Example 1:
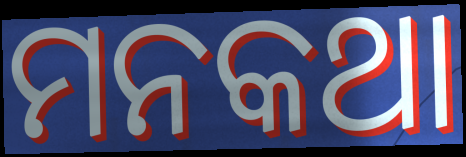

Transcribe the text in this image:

ମନକଥା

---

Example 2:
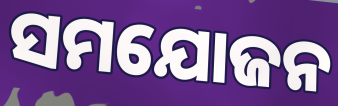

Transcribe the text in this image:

ସମଯୋଜନ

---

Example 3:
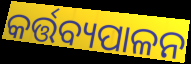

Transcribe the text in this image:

କର୍ତ୍ତବ୍ୟପାଳନ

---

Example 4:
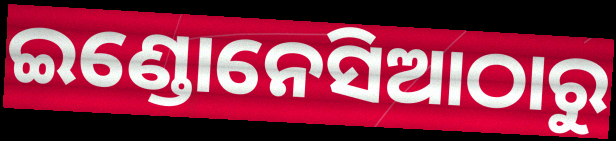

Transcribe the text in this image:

ଇଣ୍ଡୋନେସିଆଠାରୁ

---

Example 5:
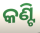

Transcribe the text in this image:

କଣ୍ଟି